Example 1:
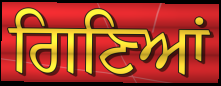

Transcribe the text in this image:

ਗਿਣਿਆਂ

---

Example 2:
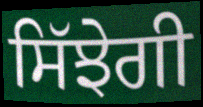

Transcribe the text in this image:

ਸਿੱਝੇਗੀ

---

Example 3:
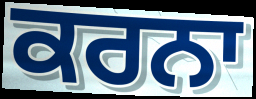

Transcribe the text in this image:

ਕਰਨਾ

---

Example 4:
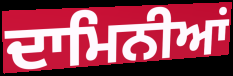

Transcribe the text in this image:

ਦਾਮਿਨੀਆਂ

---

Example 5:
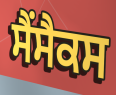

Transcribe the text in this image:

ਸੈਂਸੈਕਸ